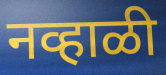
नव्हाळी